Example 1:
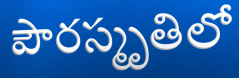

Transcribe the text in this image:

పౌరస్మృతిలో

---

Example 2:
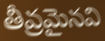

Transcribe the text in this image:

తీవ్రమైనవి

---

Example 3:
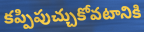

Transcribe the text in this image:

కప్పిపుచ్చుకోవటానికి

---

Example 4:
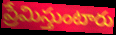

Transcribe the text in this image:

ప్రేమిస్తుంటారు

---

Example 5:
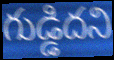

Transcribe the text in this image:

గుడ్డిదని